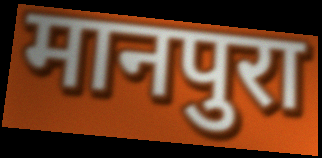
मानपुरा